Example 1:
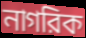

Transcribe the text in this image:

নাগরিক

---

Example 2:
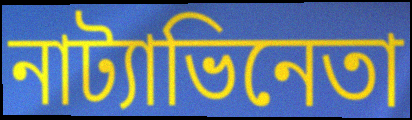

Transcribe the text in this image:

নাট্যাভিনেতা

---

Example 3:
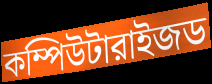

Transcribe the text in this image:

কম্পিউটারাইজড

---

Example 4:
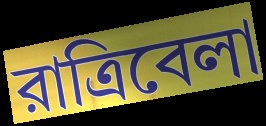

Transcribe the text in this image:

রাত্রিবেলা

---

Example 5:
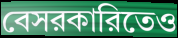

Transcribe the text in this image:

বেসরকারিতেও